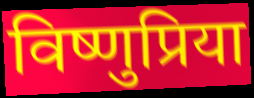
विष्णुप्रिया